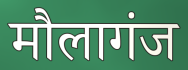
मौलागंज